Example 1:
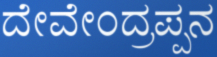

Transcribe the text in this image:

ದೇವೇಂದ್ರಪ್ಪನ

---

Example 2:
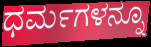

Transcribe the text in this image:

ಧರ್ಮಗಳನ್ನೂ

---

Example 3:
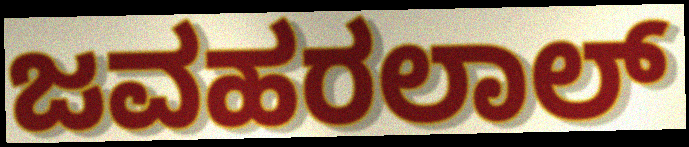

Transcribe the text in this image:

ಜವಹರಲಾಲ್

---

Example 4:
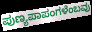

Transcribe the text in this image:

ಪುಣ್ಯಪಾಪಂಗಳೆಂಬವು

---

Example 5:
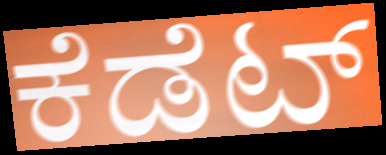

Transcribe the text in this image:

ಕೆಡೆಟ್